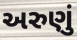
અરુણું